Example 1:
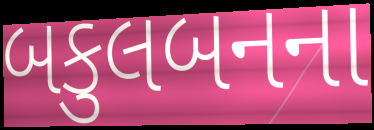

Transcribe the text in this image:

બકુલબનના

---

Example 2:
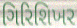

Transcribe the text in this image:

ગિરિશિખર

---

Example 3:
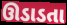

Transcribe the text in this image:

ઊડાડતા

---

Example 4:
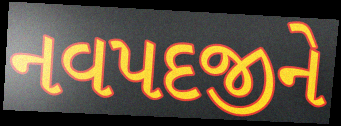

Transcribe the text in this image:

નવપદજીને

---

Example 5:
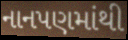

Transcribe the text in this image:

નાનપણમાંથી